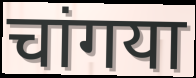
चांगया